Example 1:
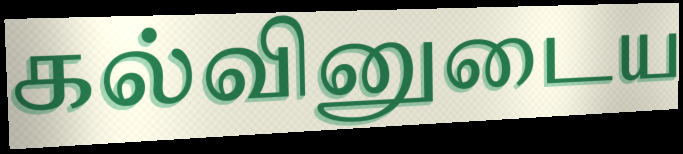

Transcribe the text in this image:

கல்வினுடைய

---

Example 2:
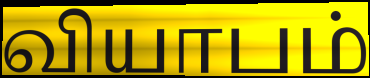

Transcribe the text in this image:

வியாபம்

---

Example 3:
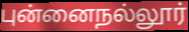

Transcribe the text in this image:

புன்னைநல்லூர்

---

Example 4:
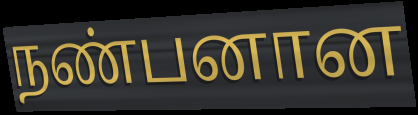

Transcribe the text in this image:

நண்பனான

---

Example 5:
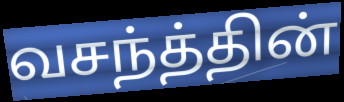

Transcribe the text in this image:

வசந்த்தின்